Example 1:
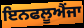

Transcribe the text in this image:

ਇਨਫਲੂਐਂਜਾ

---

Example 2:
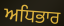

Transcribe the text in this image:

ਅਧਿਭਾਰ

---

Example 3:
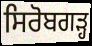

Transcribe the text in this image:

ਸਿਰੋਬਗੜ੍ਹ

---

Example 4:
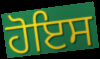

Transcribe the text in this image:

ਹੋਇਸ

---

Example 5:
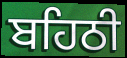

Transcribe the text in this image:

ਬਹਿਠੀ